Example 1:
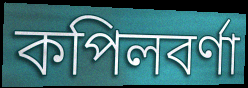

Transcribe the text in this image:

কপিলবর্ণা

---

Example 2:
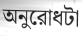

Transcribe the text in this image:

অনুরোধটা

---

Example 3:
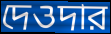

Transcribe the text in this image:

দেওদার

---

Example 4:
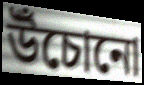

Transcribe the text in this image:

উঁচোনো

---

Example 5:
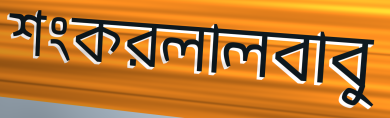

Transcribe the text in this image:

শংকরলালবাবু